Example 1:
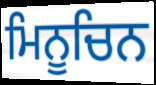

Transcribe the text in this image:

ਮਿਨੂਚਿਨ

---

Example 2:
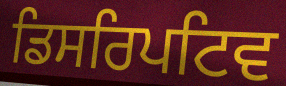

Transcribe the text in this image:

ਡਿਸਰਿਪਟਿਵ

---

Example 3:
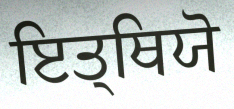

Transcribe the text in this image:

ਇਤ੍ਥਿਯੋ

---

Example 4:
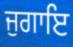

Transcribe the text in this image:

ਜੁਗਾਇ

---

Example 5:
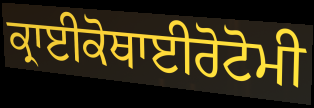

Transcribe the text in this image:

ਕ੍ਰਾਈਕੋਥਾਈਰੋਟੋਮੀ